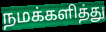
நமக்களித்து